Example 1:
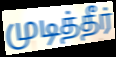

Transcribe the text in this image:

முடித்தீர்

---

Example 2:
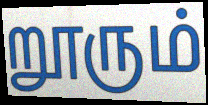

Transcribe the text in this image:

றூரும்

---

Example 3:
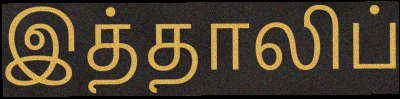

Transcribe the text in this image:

இத்தாலிப்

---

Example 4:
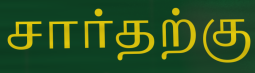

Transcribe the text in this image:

சார்தற்கு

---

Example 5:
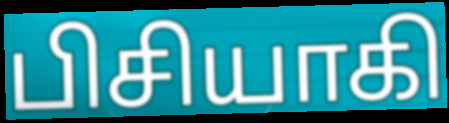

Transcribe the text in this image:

பிசியாகி